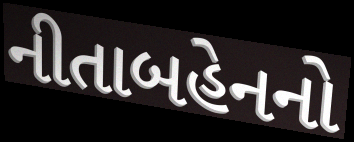
નીતાબહેનનો